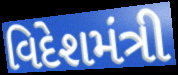
વિદેશમંત્રી